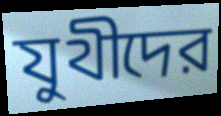
যুথীদের